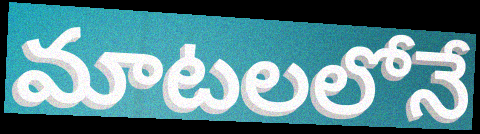
మాటలలోనే